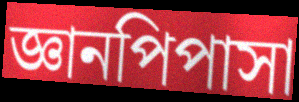
জ্ঞানপিপাসা